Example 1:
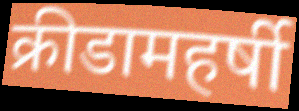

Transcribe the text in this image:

क्रीडामहर्षी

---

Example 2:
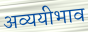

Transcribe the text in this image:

अव्ययीभाव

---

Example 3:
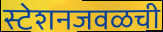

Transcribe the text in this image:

स्टेशनजवळची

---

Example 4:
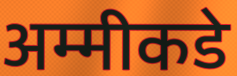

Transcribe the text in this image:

अम्मीकडे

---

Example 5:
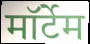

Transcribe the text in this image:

मॉर्टेम